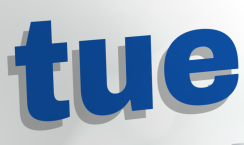
tue